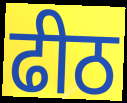
ढीठ